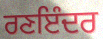
ਰਣਇੰਦਰ